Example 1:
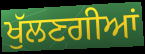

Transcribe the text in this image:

ਖੁੱਲਣਗੀਆਂ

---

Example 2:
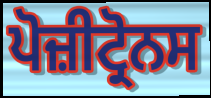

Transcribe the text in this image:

ਪੋਜ਼ੀਟ੍ਰੋਨਸ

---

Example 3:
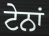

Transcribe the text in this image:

ਟੇਨਾਂ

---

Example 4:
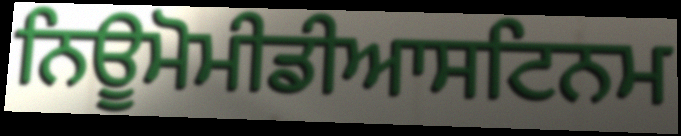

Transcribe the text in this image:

ਨਿਊਮੋਮੀਡੀਆਸਟਿਨਮ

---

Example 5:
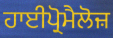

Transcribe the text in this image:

ਹਾਈਪ੍ਰੋਮੈਲੋਜ਼